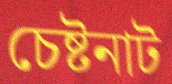
চেষ্টনাট